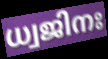
ധ്വജിനഃ